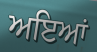
ਅਇਆਂ